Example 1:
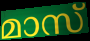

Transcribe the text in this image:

മാസ്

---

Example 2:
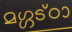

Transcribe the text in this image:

മഗ്ഗട്ഠാ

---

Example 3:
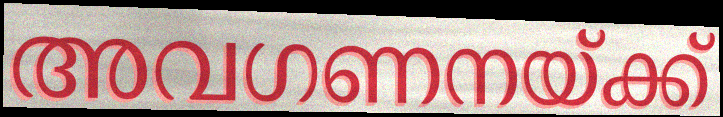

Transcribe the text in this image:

അവഗണനയ്ക്ക്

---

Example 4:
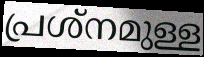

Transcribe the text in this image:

പ്രശ്നമുള്ള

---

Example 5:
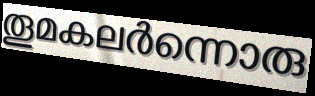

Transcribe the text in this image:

തൂമകലർന്നൊരു